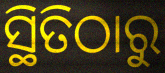
ସ୍ଥିତିଠାରୁ